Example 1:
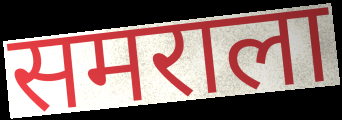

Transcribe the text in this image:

समराला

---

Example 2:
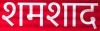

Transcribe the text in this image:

शमशाद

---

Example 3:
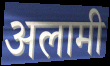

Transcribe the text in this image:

अलामी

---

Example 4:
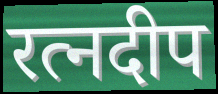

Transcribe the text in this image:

रत्नदीप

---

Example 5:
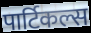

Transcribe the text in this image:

पार्टिकल्‍स